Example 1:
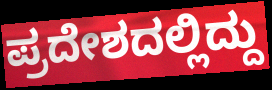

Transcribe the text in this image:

ಪ್ರದೇಶದಲ್ಲಿದ್ದು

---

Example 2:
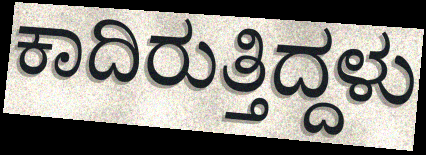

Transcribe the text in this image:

ಕಾದಿರುತ್ತಿದ್ದಳು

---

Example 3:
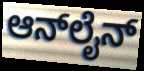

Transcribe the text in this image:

ಆನ್‌ಲೈನ್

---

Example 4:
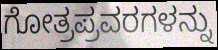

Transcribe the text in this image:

ಗೋತ್ರಪ್ರವರಗಳನ್ನು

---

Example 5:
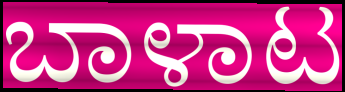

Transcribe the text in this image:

ಬಾಳಾಟ